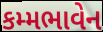
કમ્મભાવેન